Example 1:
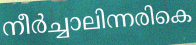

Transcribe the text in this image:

നീർച്ചാലിന്നരികെ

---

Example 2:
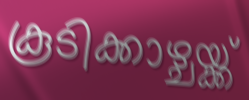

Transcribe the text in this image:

കൂടിക്കാഴ്ചയ്ക്ക്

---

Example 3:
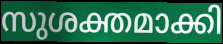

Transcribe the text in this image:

സുശക്തമാക്കി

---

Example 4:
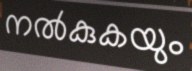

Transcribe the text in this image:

നൽകുകയും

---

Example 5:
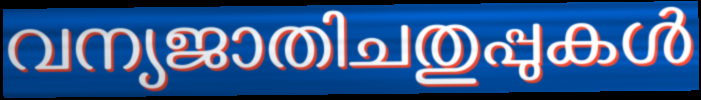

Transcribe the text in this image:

വന്യജാതിചതുപ്പുകൾ